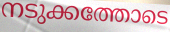
നടുക്കത്തോടെ